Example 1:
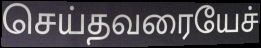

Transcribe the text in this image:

செய்தவரையேச்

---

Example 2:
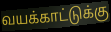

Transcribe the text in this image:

வயக்காட்டுக்கு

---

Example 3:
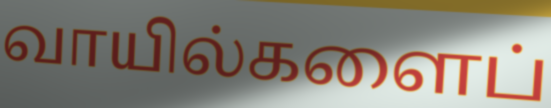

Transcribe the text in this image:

வாயில்களைப்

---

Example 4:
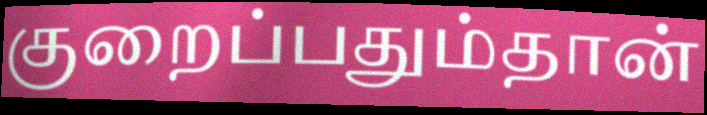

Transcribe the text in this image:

குறைப்பதும்தான்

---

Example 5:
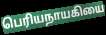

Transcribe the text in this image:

பெரியநாயகியை